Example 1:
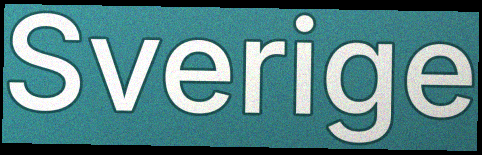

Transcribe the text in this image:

Sverige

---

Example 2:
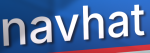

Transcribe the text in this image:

navhat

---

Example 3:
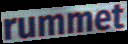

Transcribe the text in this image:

rummet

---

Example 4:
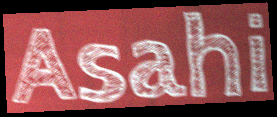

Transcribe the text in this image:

Asahi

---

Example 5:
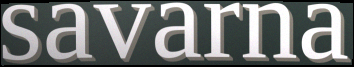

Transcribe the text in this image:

savarna